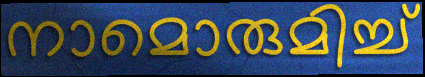
നാമൊരുമിച്ച്